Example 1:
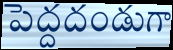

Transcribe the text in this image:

పెద్దదండుగా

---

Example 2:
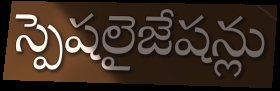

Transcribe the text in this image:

స్పెషలైజేషన్లు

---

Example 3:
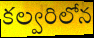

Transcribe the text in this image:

కల్వరిలోన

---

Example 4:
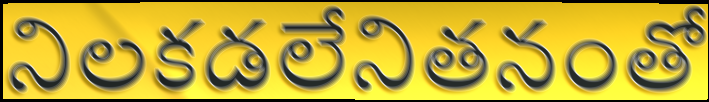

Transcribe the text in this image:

నిలకడలేనితనంతో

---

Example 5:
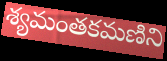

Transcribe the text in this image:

శ్యమంతకమణిని